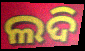
ଲଦି